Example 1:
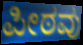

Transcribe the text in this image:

ಪೀಠವು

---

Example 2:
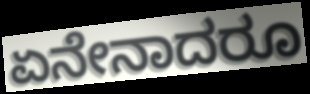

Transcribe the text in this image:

ಏನೇನಾದರೂ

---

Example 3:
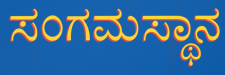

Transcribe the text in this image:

ಸಂಗಮಸ್ಥಾನ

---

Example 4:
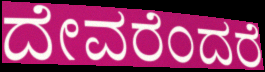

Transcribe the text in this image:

ದೇವರೆಂದರೆ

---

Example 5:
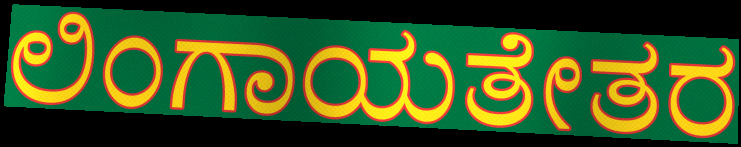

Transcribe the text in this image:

ಲಿಂಗಾಯತೇತರ